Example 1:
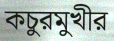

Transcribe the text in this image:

কচুরমুখীর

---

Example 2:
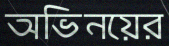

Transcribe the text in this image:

অভিনয়ের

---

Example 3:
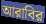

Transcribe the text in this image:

আরাবির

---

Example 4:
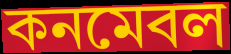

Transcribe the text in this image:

কনমেবল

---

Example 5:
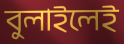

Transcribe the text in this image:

বুলাইলেই